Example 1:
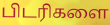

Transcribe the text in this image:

பிடரிகளை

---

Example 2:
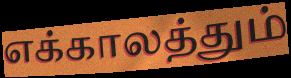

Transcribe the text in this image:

எக்காலத்தும்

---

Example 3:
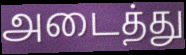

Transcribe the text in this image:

அடைத்து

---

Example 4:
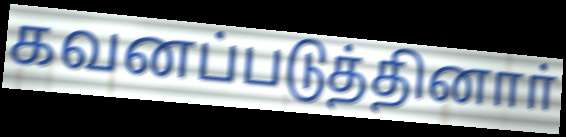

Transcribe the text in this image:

கவனப்படுத்தினார்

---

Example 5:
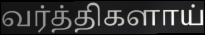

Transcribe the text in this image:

வர்த்திகளாய்